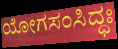
ಯೋಗಸಂಸಿದ್ಧಃ